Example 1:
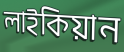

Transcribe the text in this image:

লাইকিয়ান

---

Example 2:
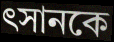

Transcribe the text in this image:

ৎসানকে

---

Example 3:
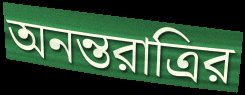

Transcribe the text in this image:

অনন্তরাত্রির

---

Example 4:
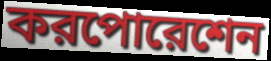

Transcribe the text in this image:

করপোরেশেন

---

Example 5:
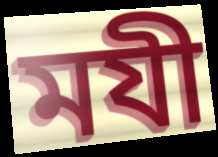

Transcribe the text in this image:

মযী